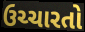
ઉચ્ચારતો